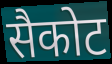
सैकोट